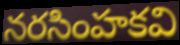
నరసింహకవి